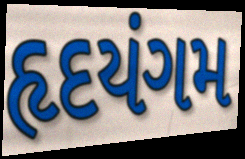
હૃદયંગમ